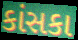
કાંસકા